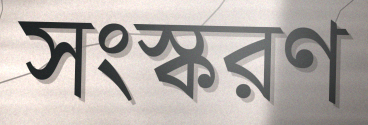
সংস্করণ